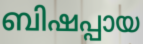
ബിഷപ്പായ